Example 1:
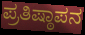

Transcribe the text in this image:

ಪ್ರತಿಷ್ಠಾಪನ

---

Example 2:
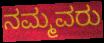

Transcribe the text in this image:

ನಮ್ಮವರು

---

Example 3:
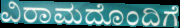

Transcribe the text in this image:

ವಿರಾಮದೊಂದಿಗೆ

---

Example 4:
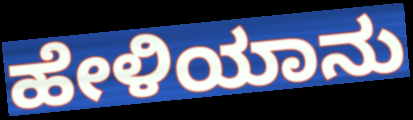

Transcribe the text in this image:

ಹೇಳಿಯಾನು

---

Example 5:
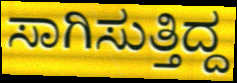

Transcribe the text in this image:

ಸಾಗಿಸುತ್ತಿದ್ದ